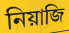
নিয়াজি